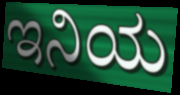
ಇನಿಯ